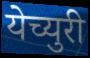
येच्युरी